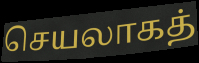
செயலாகத்